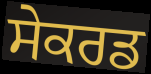
ਸੇਕਰਡ